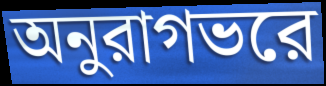
অনুরাগভরে